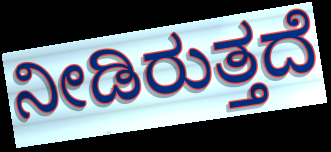
ನೀಡಿರುತ್ತದೆ